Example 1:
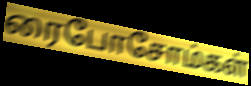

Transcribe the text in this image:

ரைபோசோம்கள்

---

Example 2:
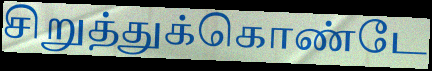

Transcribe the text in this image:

சிறுத்துக்கொண்டே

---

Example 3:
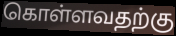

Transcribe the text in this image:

கொள்ளவதற்கு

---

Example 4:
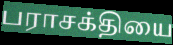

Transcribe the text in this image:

பராசக்தியை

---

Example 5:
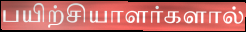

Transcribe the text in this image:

பயிற்சியாளர்களால்